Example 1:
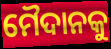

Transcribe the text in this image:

ମୈଦାନକୁ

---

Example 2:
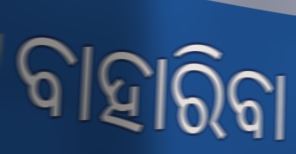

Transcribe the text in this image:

ବାହାରିବା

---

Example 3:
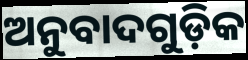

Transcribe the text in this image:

ଅନୁବାଦଗୁଡ଼ିକ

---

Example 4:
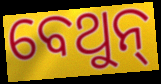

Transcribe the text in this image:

ବେଥୁନ୍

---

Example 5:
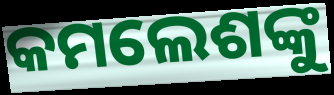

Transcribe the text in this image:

କମଲେଶଙ୍କୁ